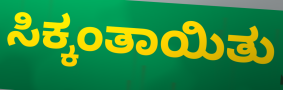
ಸಿಕ್ಕಂತಾಯಿತು